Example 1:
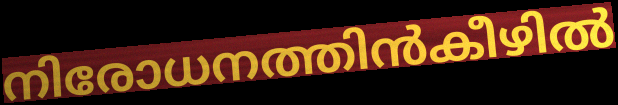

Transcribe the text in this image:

നിരോധനത്തിൻകീഴിൽ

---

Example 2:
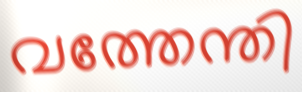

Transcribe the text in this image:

വത്തേന്തി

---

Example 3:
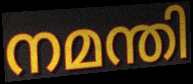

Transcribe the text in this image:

നമന്തി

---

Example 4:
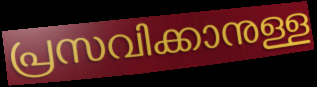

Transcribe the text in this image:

പ്രസവിക്കാനുള്ള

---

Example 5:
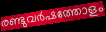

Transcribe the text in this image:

രണ്ടുവർഷത്തോളം